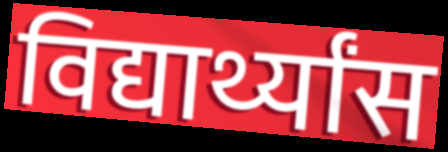
विद्यार्थ्यांस